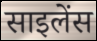
साइलेंस